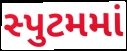
સ્પુટમમાં